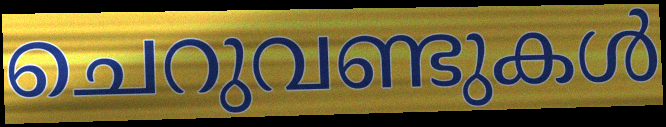
ചെറുവണ്ടുകൾ